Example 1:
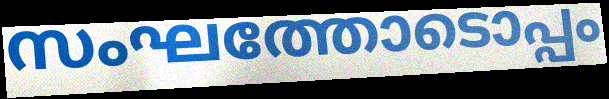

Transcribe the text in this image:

സംഘത്തോടൊപ്പം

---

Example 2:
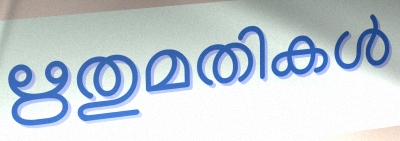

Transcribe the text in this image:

ഋതുമതികൾ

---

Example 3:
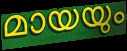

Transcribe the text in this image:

മായയും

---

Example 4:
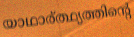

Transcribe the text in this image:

യാഥാര്ത്ഥ്യത്തിന്റെ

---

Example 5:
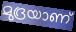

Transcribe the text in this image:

മുദ്രയാണ്